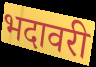
भदावरी